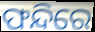
ଫନ୍ଦିରେ